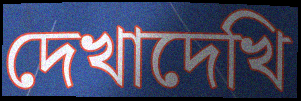
দেখাদেখি